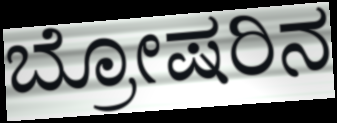
ಬ್ರೋಷರಿನ